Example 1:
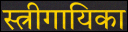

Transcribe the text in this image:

स्त्रीगायिका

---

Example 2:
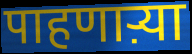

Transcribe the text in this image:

पाहणाऱ्‍या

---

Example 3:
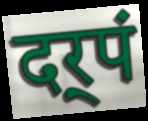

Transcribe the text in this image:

दर्पं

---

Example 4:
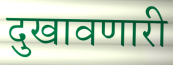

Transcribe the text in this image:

दुखावणारी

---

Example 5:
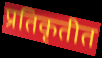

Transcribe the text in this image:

प्रतिकृतीत